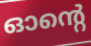
ഓന്റെ